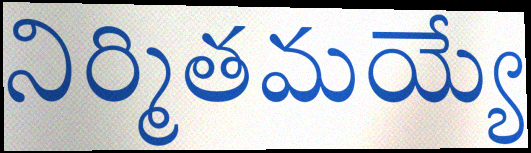
నిర్మితమయ్యే